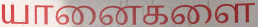
யானைகளை